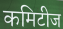
कमिटीज